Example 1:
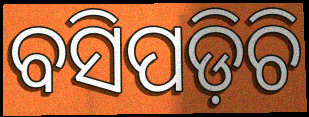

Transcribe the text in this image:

ବସିପଡ଼ିଚି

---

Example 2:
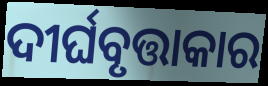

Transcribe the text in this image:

ଦୀର୍ଘବୃତ୍ତାକାର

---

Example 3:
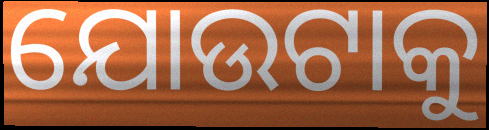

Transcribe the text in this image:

ଯୋଉଟାକୁ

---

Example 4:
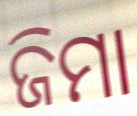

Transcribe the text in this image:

ଜିମା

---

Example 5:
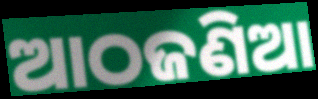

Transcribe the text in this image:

ଆଠଜଣିଆ